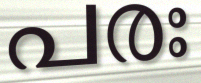
പരഃ